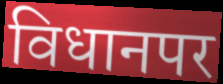
विधानपर